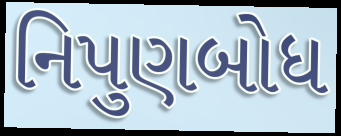
નિપુણબોધ